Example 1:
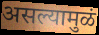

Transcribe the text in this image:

असल्यामुळं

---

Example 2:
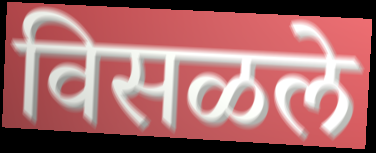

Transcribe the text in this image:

विसळले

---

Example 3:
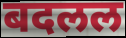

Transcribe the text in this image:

बदलल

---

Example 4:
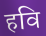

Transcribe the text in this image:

हवि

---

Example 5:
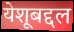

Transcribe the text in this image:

येशूबद्दल